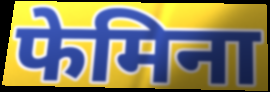
फेमिना